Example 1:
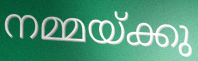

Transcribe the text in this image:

നമ്മയ്ക്കു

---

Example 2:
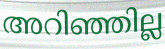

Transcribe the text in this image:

അറിഞ്ഞില്ല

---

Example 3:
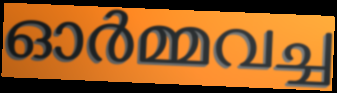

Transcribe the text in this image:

ഓർമ്മവച്ച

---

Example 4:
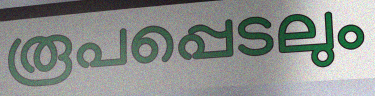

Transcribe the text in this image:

രൂപപ്പെടലും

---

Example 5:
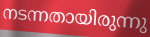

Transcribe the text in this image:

നടന്നതായിരുന്നു